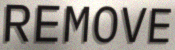
REMOVE